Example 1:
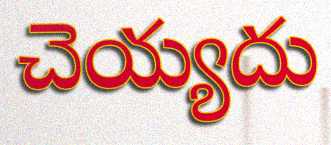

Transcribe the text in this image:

చెయ్యదు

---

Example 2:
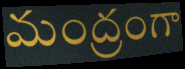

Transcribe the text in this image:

మంద్రంగా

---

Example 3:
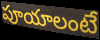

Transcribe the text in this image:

పూయాలంటే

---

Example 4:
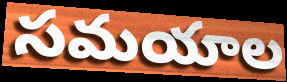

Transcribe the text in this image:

సమయాల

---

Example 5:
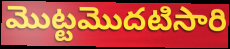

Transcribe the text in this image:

మొట్టమొదటిసారి